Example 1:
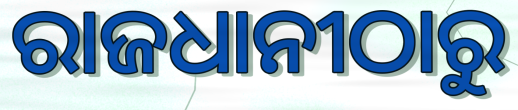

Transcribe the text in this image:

ରାଜଧାନୀଠାରୁ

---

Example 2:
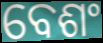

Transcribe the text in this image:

ବେଶଂ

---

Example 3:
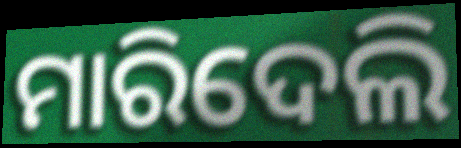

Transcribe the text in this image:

ମାରିଦେଲି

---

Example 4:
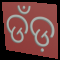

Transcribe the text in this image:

ଡଁଡ଼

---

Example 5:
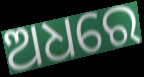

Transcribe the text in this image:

ଅଧରେ